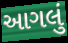
આગલું